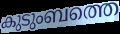
കുടുംബത്തെ